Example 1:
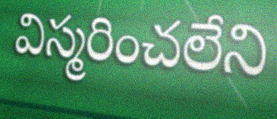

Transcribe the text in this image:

విస్మరించలేని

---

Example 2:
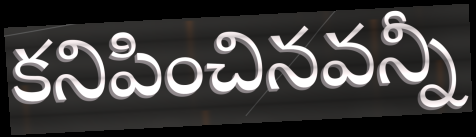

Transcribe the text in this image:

కనిపించినవన్నీ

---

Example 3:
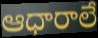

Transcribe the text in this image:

ఆధారాలే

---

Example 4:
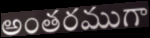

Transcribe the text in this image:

అంతరముగా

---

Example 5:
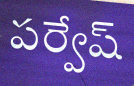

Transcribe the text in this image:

పర్వేష్